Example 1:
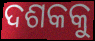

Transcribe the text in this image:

ଦଶକକୁ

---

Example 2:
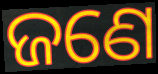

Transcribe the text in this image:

ଜଣେ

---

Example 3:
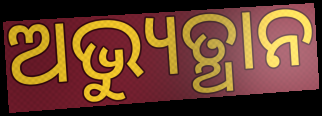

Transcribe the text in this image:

ଅଭ୍ୟୁତ୍ଥାନ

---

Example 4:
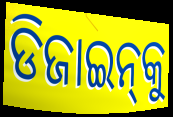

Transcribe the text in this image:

ଡିଜାଇନ୍‌କୁ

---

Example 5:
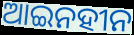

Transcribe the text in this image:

ଆଇନହୀନ